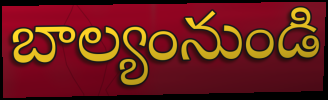
బాల్యంనుండి